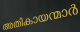
അതികായന്മാർ